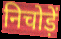
निचोड़ें